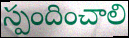
స్పందించాలి